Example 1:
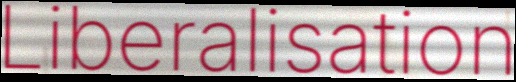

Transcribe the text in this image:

Liberalisation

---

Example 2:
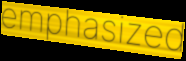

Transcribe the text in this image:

emphasized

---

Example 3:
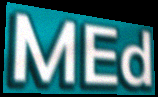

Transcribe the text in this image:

MEd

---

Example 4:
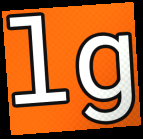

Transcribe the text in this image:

lg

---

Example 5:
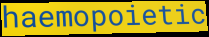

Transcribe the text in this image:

haemopoietic